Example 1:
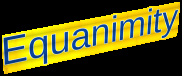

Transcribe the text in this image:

Equanimity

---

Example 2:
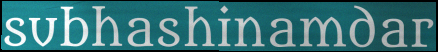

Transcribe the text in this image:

subhashinamdar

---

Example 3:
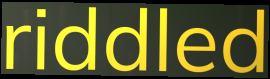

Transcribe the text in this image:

riddled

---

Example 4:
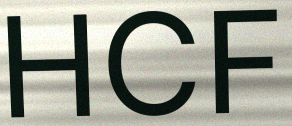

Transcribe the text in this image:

HCF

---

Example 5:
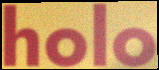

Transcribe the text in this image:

holo